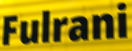
Fulrani